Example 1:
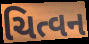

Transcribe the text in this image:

ચિત્વન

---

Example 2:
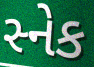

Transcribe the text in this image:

સ્નેક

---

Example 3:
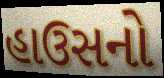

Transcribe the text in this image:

હાઉસનો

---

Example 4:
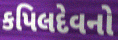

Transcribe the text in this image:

કપિલદેવનો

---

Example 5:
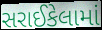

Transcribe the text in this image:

સરાઈકેલામાં